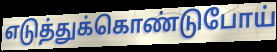
எடுத்துக்கொண்டுபோய்